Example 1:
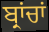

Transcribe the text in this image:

ਬ੍ਰਾਂਚਾਂ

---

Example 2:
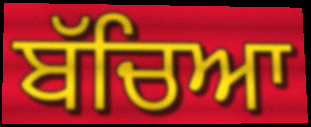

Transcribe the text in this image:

ਬੱਚਿਆ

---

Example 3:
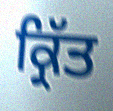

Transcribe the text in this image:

ਕ੍ਰਿੱਤ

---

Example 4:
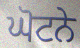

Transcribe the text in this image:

ਘੋਟਨੇ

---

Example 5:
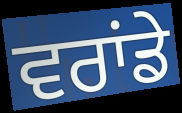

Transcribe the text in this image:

ਵਰਾਂਡੇ